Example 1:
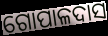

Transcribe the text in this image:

ଗୋପାଳଦାସ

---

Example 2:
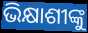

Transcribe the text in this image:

ଭିକ୍ଷାଶୀଙ୍କୁ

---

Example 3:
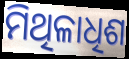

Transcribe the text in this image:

ମିଥିଳାଧିଶ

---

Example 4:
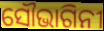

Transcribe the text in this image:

ସୌଭାଗିନୀ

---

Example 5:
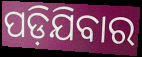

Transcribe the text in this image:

ପଡ଼ିଯିବାର